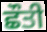
ਛੌਤੀ